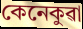
কেনেকুৱা